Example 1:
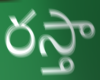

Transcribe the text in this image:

రస్తా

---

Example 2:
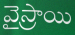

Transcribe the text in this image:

వైస్రాయి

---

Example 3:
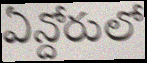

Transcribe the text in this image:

ఏన్దోరులో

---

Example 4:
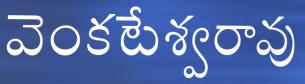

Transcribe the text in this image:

వెంకటేశ్వరావు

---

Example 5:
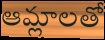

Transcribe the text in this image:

ఆమ్లాలతో